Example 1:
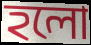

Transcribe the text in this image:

হলো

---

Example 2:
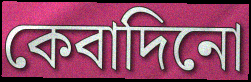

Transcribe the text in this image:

কেবাদিনো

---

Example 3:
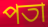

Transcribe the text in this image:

পতা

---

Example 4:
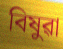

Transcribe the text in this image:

বিষুৱা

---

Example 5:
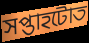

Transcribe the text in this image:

সপ্তাহটোত